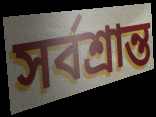
সৰ্বশ্ৰান্ত